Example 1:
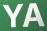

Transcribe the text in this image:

YA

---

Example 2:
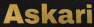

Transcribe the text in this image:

Askari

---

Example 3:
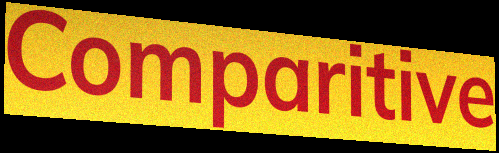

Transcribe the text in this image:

Comparitive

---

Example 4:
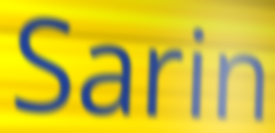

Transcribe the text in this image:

Sarin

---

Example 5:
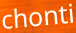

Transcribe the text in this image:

chonti